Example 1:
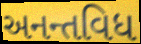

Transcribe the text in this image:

અનન્તવિધ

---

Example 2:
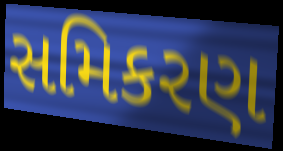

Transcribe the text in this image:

સમિકરણ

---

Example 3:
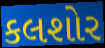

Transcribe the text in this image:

કલશોર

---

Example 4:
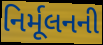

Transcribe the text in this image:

નિર્મૂલનની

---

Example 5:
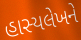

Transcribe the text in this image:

હાસ્યલેખને